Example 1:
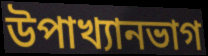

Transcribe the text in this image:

উপাখ্যানভাগ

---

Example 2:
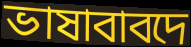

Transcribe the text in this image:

ভাষাবাবদে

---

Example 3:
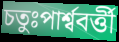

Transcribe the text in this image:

চতুঃপার্শ্ববর্ত্তী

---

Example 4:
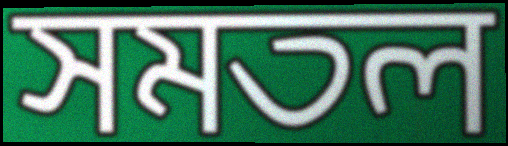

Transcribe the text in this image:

সমতল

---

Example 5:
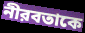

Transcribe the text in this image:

নীরবতাকে